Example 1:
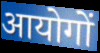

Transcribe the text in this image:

आयोगों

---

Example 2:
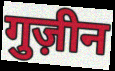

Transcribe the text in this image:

गुज़ीन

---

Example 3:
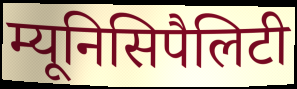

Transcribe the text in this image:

म्यूनिसिपैलिटी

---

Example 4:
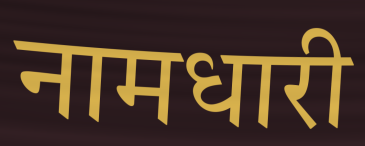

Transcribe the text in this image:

नामधारी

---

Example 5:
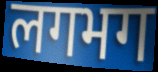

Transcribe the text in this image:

लगभग